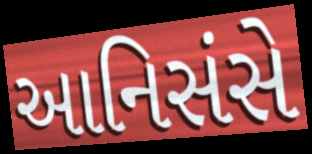
આનિસંસે